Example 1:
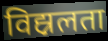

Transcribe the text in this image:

विह्नलता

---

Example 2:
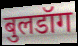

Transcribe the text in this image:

बुलडॉग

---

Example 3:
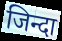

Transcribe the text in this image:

जिन्दा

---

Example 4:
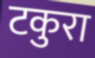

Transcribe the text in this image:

टकुरा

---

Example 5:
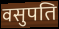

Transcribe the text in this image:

वसुपति